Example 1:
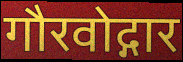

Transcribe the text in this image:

गौरवोद्गार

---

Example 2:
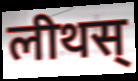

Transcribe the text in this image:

लीथस्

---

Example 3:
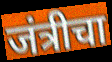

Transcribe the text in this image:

जंत्रीचा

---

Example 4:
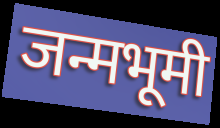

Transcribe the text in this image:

जन्मभूमी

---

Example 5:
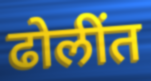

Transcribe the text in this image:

ढोलींत